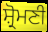
ਸ਼੍ਰੋਮਣੀ